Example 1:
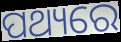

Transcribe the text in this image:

ପଥ୍ୟରେ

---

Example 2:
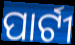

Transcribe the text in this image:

ପାର୍ଟୀ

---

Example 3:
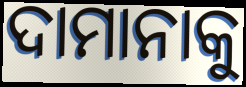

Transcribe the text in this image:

ଦାମାନାକୁ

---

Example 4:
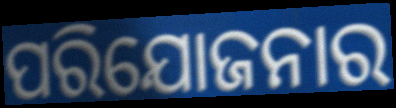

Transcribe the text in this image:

ପରିଯୋଜନାର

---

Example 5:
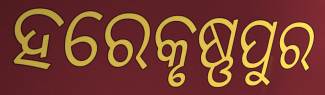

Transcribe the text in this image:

ହରେକୃଷ୍ଣପୁର